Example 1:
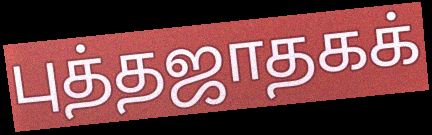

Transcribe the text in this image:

புத்தஜாதகக்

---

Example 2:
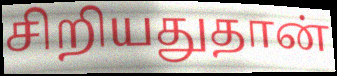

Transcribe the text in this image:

சிறியதுதான்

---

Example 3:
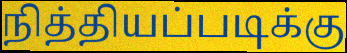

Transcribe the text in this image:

நித்தியப்படிக்கு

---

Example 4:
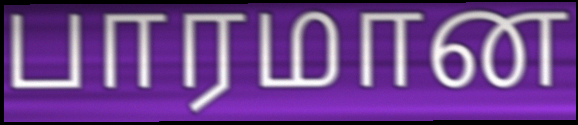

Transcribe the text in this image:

பாரமான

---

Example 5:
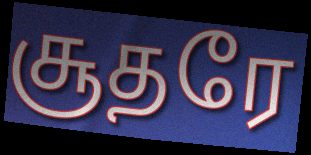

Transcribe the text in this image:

சூதரே